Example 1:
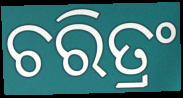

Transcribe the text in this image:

ଚରିତ୍ରଂ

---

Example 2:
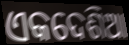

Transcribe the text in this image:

ଏକଦେଶିଆ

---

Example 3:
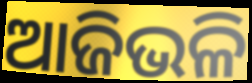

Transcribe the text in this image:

ଆଜିଭଳି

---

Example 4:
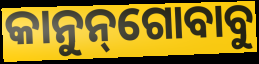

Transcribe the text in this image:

କାନୁନ୍‌ଗୋବାବୁ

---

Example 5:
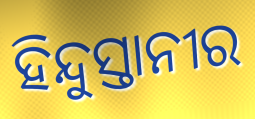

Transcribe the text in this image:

ହିନ୍ଦୁସ୍ତାନୀର